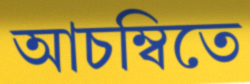
আচম্বিতে